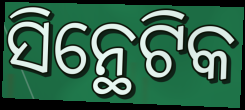
ସିନ୍ଥେଟିକ